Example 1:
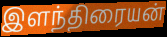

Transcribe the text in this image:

இளந்திரையன்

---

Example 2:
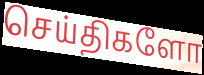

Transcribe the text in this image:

செய்திகளோ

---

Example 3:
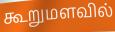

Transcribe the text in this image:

கூறுமளவில்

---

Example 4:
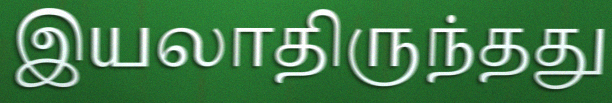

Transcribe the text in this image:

இயலாதிருந்தது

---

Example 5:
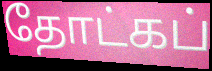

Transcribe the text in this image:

தோட்கப்